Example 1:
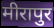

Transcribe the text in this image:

मीरापुर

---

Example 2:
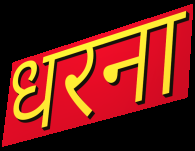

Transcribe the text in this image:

धरना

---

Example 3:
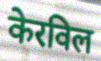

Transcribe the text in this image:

केरविल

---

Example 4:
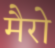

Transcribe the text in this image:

मैरो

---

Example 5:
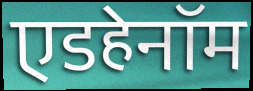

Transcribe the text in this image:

एडहेनॉम